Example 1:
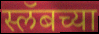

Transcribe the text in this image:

स्लॅबच्या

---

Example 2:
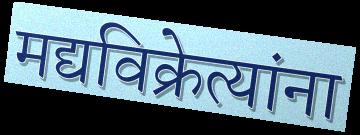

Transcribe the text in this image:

मद्यविक्रेत्यांना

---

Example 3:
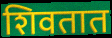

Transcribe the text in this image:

शिवतात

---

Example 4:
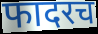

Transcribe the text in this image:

फादरच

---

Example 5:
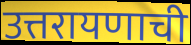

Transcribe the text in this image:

उत्तरायणाची